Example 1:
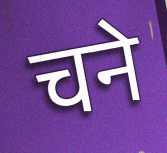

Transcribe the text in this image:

चने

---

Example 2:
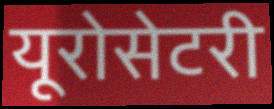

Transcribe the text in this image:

यूरोसेटरी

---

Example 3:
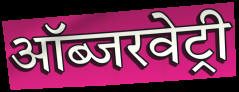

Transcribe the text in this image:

ऑब्जरवेट्री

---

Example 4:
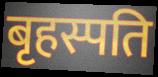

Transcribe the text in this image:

बृहस्‍पति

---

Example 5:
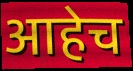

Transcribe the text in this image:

आहेच